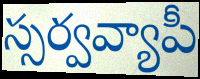
స్సర్వవ్యాపీ